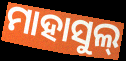
ମାହାସୁଲ୍